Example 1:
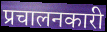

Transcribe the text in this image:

प्रचालनकारी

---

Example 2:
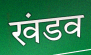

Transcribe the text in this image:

खंडव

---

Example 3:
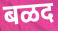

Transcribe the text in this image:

बळद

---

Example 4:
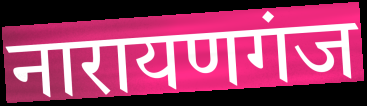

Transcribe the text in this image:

नारायणगंज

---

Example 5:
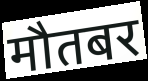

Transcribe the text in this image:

मौतबर